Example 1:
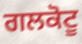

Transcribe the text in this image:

ਗਲਕੋਟੂ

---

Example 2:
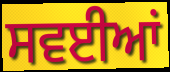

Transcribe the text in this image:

ਸਵਈਆਂ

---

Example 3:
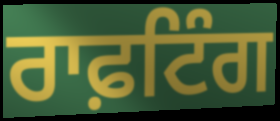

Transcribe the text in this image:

ਰਾਫ਼ਟਿੰਗ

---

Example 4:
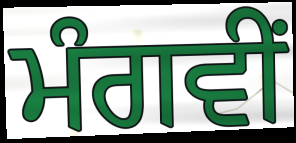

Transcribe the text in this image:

ਮੰਗਵੀਂ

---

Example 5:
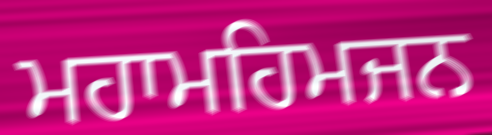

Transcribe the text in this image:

ਮਹਾਮਹਿਮਜਨ